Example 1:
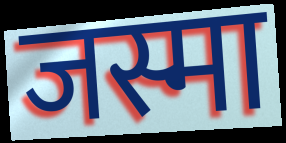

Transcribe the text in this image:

जस्मा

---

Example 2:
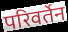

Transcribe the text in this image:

परिवर्तेन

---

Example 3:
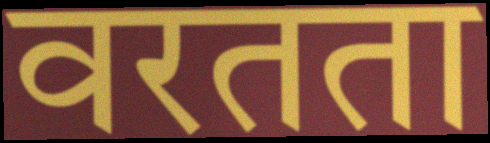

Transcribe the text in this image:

वरतता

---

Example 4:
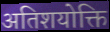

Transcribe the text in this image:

अतिशयोक्ति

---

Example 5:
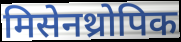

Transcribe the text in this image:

मिसेनथ्रोपिक